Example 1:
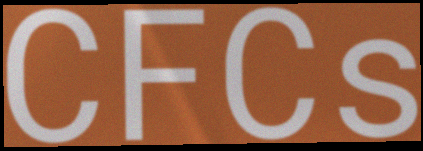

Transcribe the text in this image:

CFCs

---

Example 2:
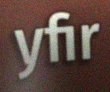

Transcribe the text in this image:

yfir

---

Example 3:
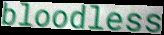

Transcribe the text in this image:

bloodless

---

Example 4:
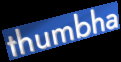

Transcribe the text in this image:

thumbha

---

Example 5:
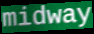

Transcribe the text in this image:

midway